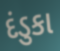
દંડુકા